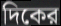
দিকের